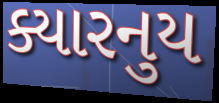
ક્યારનુય